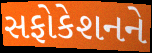
સફોકેશનને